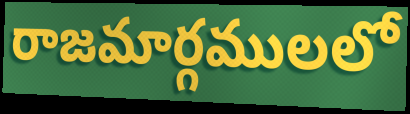
రాజమార్గములలో